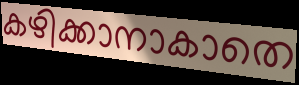
കഴിക്കാനാകാതെ